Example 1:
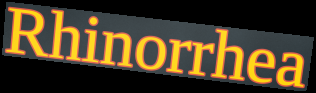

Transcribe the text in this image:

Rhinorrhea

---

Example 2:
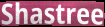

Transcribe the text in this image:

Shastree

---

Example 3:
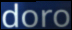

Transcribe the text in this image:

doro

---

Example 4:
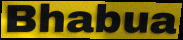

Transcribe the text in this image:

Bhabua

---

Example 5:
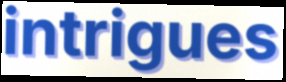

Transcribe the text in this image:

intrigues